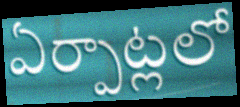
ఏర్పాట్లలో